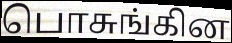
பொசுங்கின